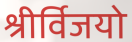
श्रीर्विजयो